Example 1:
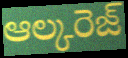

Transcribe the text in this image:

ఆల్కరెజ్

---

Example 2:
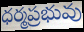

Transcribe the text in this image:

ధర్మప్రభువు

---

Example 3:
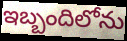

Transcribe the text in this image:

ఇబ్బందిలోను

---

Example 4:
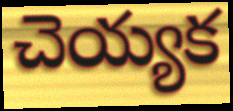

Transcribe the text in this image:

చెయ్యక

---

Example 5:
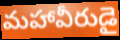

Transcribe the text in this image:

మహావీరుడై